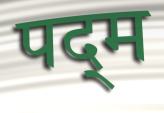
पद्‌म